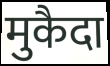
मुकैदा